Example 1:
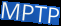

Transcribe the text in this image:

MPTP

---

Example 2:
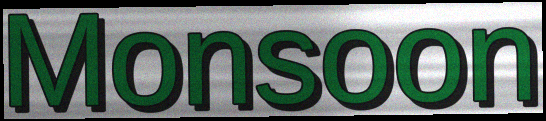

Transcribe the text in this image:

Monsoon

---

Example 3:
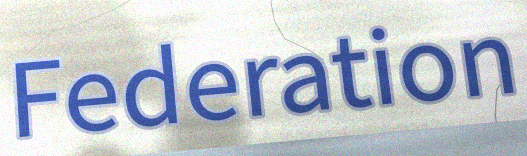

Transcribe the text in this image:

Federation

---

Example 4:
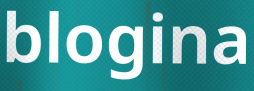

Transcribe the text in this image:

blogina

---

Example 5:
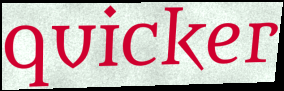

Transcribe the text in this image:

quicker